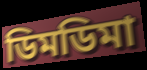
ডিমডিমা